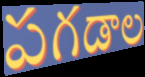
పగడాల